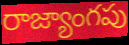
రాజ్యాంగపు